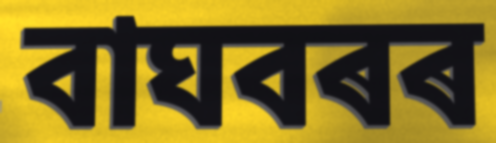
বাঘবৰৰ